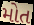
મોત